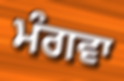
ਮੰਗਵਾ